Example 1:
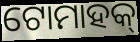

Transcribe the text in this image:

ଟୋମାହକ୍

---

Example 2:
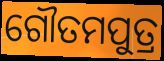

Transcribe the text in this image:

ଗୌତମପୁତ୍ର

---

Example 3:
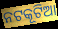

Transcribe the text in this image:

ନଟକୂଟିଆ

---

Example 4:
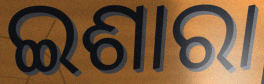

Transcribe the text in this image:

ଇଶାରା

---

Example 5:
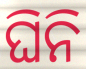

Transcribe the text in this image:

ଘିନି